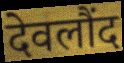
देवलौंद